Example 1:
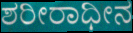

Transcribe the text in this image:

ಶರೀರಾಧೀನ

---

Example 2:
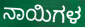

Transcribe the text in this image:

ನಾಯಿಗಳ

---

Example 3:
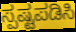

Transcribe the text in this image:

ಸ್ಪಷ್ಟಪಡಿಸಿ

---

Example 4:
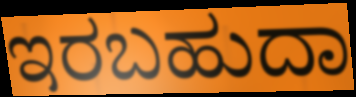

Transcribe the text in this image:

ಇರಬಹುದಾ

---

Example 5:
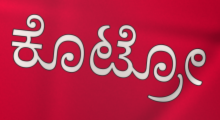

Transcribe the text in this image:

ಕೊಟ್ರೋ